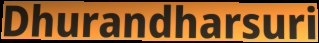
Dhurandharsuri